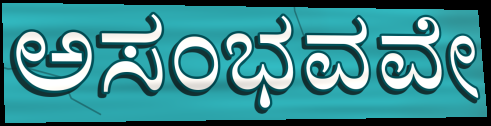
ಅಸಂಭವವೇ